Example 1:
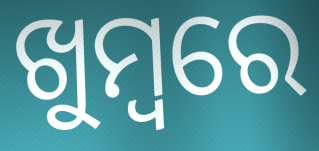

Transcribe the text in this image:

ଖୁମ୍ବରେ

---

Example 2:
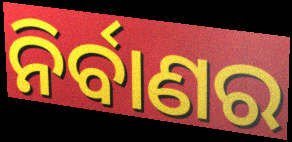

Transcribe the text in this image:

ନିର୍ବାଣର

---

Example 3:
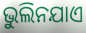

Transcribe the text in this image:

ଭୁଲିନଯାଏ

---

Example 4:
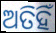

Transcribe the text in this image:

ଅତିହିଁ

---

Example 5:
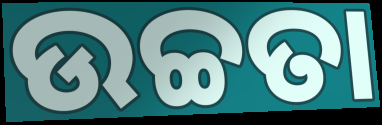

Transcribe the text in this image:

ଉଚ୍ଚତା